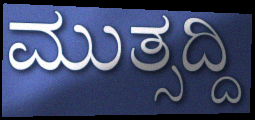
ಮುತ್ಸದ್ದಿ